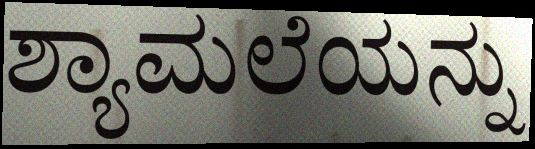
ಶ್ಯಾಮಲೆಯನ್ನು